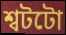
শ্বটটো